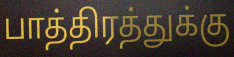
பாத்திரத்துக்கு